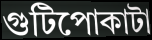
গুটিপোকাটা